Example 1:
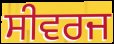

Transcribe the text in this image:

ਸੀਵਰਜ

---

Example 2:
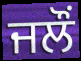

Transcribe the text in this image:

ਜਲੌਂ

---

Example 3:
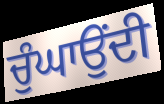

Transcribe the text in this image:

ਚੁੰਘਾਉਂਦੀ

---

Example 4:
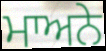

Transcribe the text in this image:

ਮਾਅਨੇ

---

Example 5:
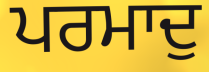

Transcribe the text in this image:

ਪਰਮਾਦੁ